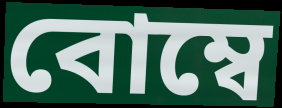
বোম্বে